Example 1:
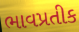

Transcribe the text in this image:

ભાવપ્રતીક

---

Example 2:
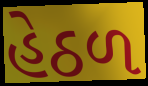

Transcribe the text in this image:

હેઠળ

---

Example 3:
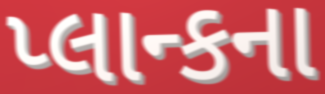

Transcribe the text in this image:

પ્લાન્કના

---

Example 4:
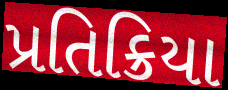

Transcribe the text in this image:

પ્રતિક્રિયા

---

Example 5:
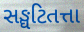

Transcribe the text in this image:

સઙ્ઘટિતત્તા